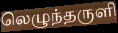
லெழுந்தருளி